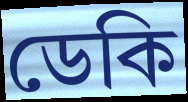
ডেকি